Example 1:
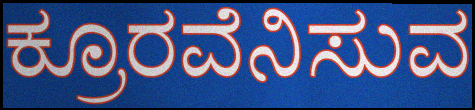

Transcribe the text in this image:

ಕ್ರೂರವೆನಿಸುವ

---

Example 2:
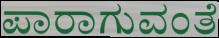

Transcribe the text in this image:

ಪಾರಾಗುವಂತೆ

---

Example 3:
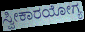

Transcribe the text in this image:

ಸ್ವೀಕಾರಯೋಗ್ಯ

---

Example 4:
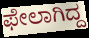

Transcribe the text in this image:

ಫೇಲಾಗಿದ್ದ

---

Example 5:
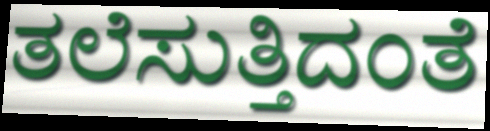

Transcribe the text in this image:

ತಲೆಸುತ್ತಿದಂತೆ